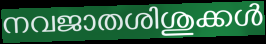
നവജാതശിശുക്കൾ